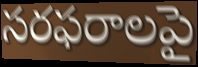
సరఫరాలపై